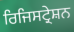
ਰਿਜਿਸਟ੍ਰੇਸ਼ਨ